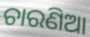
ଚାରଣିଆ